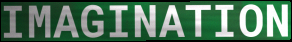
IMAGINATION